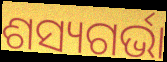
ଶସ୍ୟଗର୍ଭା